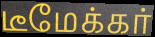
டீமேக்கர்